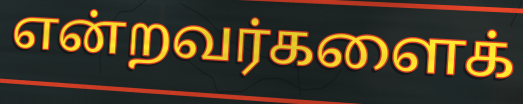
என்றவர்களைக்